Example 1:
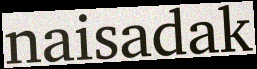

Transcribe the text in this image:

naisadak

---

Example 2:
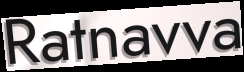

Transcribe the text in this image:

Ratnavva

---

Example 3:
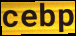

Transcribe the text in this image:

cebp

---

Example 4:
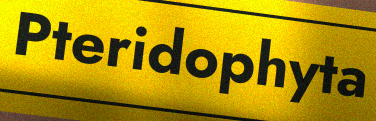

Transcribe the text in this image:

Pteridophyta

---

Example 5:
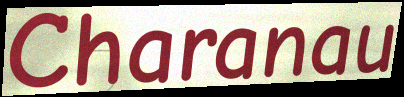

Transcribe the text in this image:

Charanau